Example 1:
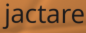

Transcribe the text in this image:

jactare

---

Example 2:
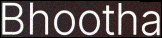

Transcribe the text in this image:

Bhootha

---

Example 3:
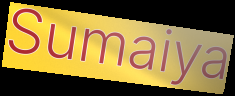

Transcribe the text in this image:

Sumaiya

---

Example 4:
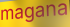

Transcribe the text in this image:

magana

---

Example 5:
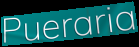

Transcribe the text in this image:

Pueraria